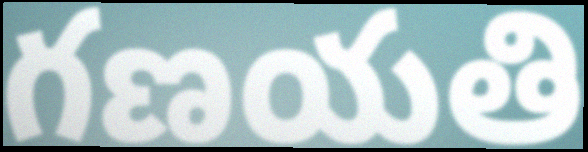
గణయతి